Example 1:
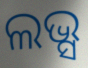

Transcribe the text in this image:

ଲଭ୍ସ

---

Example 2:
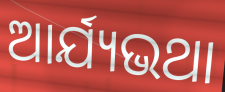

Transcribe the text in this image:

ଆର୍ଯ୍ୟଭଥା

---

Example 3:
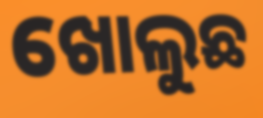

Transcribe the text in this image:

ଖୋଲୁଛ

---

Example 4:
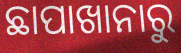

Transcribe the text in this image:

ଛାପାଖାନାରୁ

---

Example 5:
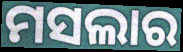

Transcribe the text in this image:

ମସଲାର